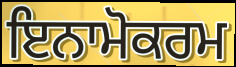
ਇਨਾਮੋਕਰਮ